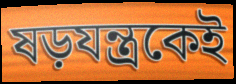
ষড়যন্ত্রকেই